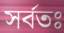
সর্বতঃ